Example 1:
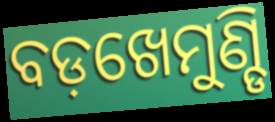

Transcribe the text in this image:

ବଡ଼ଖେମୁଣ୍ଡି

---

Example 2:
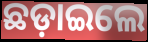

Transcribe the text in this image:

ଛଡ଼ାଇଲେ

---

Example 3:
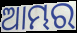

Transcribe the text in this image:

ଆମ୍ଭର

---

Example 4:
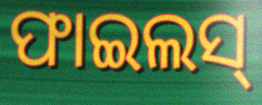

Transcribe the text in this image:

ଫାଇଲସ୍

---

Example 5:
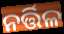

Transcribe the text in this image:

ନର୍ତ୍ତିଳ